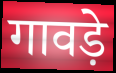
गावड़े